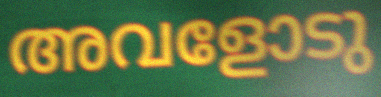
അവളോടു